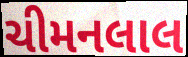
ચીમનલાલ